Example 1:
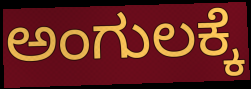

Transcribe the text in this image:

ಅಂಗುಲಕ್ಕೆ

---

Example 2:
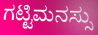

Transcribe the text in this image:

ಗಟ್ಟಿಮನಸ್ಸು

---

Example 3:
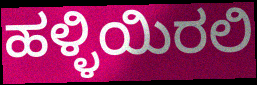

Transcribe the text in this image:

ಹಳ್ಳಿಯಿರಲಿ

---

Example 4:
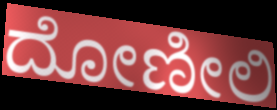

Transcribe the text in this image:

ದೋಣೀಲಿ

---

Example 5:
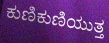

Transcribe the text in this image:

ಕುಣಿಕುಣಿಯುತ್ತ